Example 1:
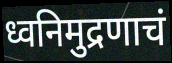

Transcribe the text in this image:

ध्वनिमुद्रणाचं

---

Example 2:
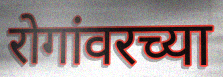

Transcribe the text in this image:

रोगांवरच्या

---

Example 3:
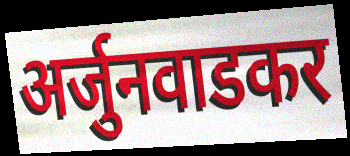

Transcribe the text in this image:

अर्जुनवाडकर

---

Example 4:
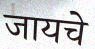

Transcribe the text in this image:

जायचे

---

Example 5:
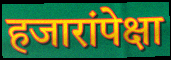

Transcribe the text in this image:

हजारांपेक्षा